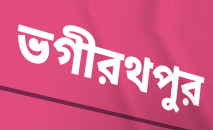
ভগীরথপুর